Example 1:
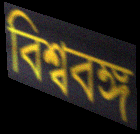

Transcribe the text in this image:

বিশ্ববঙ্গ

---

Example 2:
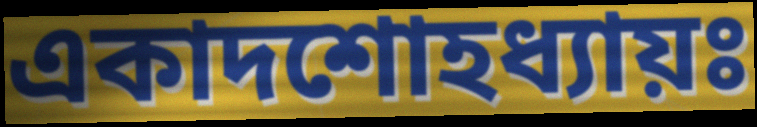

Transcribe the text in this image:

একাদশোহধ্যায়ঃ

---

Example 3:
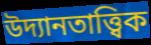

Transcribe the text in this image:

উদ্যানতাত্ত্বিক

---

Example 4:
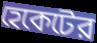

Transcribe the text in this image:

হেকেটের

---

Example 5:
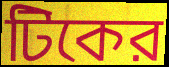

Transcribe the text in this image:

টিকের